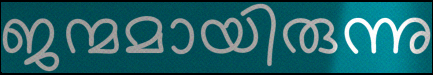
ജന്മമായിരുന്നു